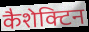
कैशेक्टिन